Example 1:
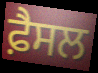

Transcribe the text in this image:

ਫ਼ੈਸਲ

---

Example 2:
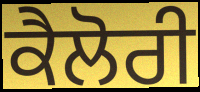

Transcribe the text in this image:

ਕੈਲੋਰੀ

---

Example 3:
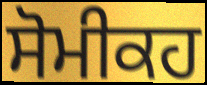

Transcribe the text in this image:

ਸੋਮੀਕਹ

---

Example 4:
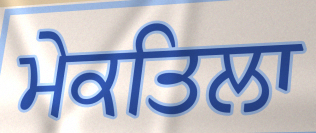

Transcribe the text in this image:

ਮੇਕਤਿਲਾ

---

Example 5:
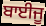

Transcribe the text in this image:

ਬਾਈਜੂ